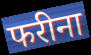
फरीना